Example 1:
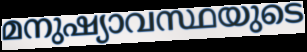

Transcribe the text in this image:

മനുഷ്യാവസ്ഥയുടെ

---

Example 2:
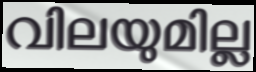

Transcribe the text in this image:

വിലയുമില്ല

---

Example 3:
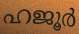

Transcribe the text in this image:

ഹജൂർ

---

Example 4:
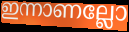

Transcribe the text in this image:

ഇന്നാണല്ലോ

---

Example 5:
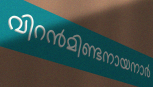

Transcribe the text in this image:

വിറൻമിണ്ടനായനാർ